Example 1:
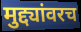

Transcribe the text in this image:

मुद्द्यांवरच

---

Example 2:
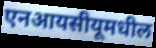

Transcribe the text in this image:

एनआयसीयूमधील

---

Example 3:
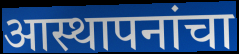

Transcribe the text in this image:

आस्थापनांचा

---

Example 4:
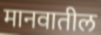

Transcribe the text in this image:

मानवातील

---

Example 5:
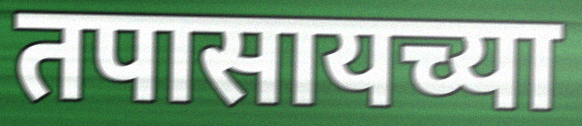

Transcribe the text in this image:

तपासायच्या